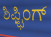
ಶಿಫ್ಟಿಂಗ್